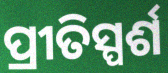
ପ୍ରୀତିସ୍ପର୍ଶ